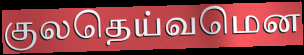
குலதெய்வமென